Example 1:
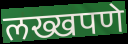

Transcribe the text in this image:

लख्खपणे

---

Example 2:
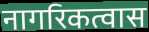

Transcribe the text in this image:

नागरिकत्वास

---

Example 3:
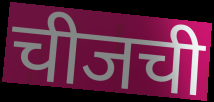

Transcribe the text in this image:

चीजची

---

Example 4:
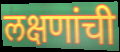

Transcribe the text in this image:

लक्षणांची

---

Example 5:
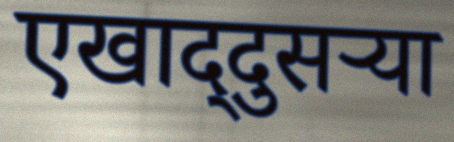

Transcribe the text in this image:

एखाद्‌दुसऱ्या